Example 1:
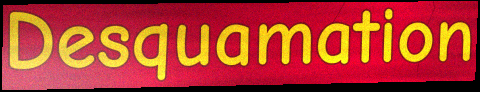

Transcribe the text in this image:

Desquamation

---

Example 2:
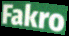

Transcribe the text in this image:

Fakro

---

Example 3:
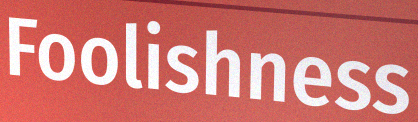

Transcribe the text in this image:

Foolishness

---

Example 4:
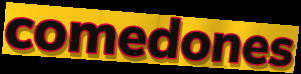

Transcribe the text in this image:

comedones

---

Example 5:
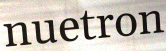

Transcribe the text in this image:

nuetron